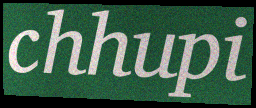
chhupi